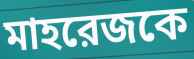
মাহরেজকে